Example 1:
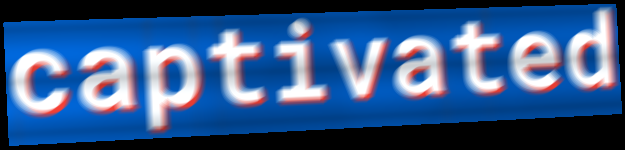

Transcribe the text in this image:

captivated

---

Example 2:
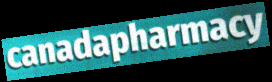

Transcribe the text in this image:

canadapharmacy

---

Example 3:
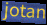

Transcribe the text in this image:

jotan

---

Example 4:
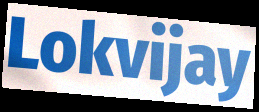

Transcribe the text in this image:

Lokvijay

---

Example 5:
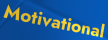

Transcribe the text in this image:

Motivational